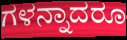
ಗಳನ್ನಾದರೂ